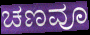
ಚಣವೂ